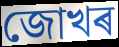
জোখৰ